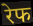
रेफ